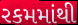
રકમમાંથી